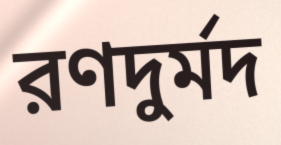
রণদুর্মদ